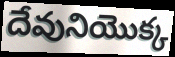
దేవునియొక్క